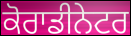
ਕੋਰਾਡੀਨੇਟਰ